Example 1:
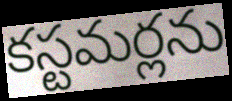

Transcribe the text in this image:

కస్టమర్లను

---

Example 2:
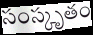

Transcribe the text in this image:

సంస్కృతం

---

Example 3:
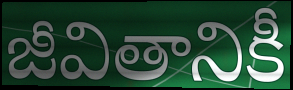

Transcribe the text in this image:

జీవితానికీ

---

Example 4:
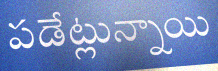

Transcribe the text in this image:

పడేట్లున్నాయి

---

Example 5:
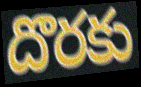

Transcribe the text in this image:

దొరకు